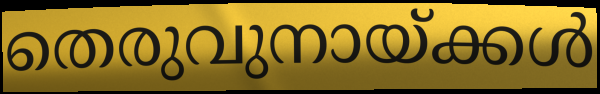
തെരുവുനായ്ക്കൾ